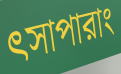
ৎসাপারাং